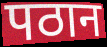
पठान